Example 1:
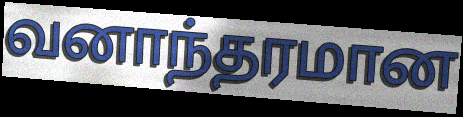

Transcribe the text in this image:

வனாந்தரமான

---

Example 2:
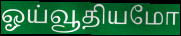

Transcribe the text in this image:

ஓய்வூதியமோ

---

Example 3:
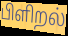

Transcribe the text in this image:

பிளிறல்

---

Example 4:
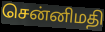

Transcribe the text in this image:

சென்னிமதி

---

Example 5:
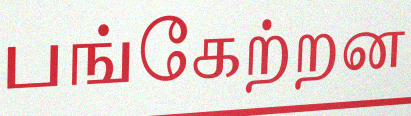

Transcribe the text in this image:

பங்கேற்றன